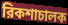
রিকশাচালক